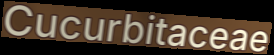
Cucurbitaceae